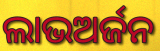
ଲାଭଅର୍ଜନ